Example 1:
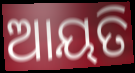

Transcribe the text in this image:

ଆୟତି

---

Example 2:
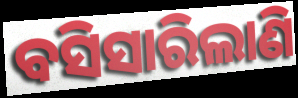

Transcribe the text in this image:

ବସିସାରିଲାଣି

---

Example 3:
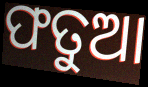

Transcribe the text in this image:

ଫତୁଆ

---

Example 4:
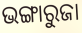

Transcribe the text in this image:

ଭଙ୍ଗାରୁଜା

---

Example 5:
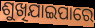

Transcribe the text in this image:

ଶୁଖିଯାଇପାରେ